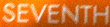
SEVENTH